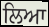
ਲਿਆ